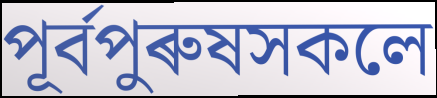
পূৰ্বপুৰুষসকলে